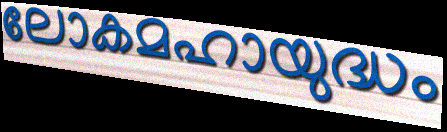
ലോകമഹായുദ്ധം